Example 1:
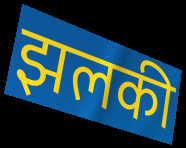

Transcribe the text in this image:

झलकी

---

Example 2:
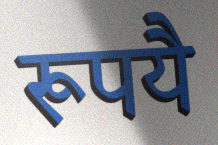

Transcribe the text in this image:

रूपयै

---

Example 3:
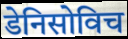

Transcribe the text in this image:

डेनिसोविच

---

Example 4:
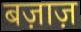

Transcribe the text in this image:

बज़ाज़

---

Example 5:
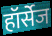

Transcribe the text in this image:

हॉर्सेज